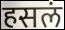
हसलं